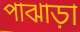
পাঝাড়া